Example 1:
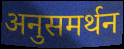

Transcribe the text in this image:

अनुसमर्थन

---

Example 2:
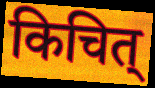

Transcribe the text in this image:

किचित्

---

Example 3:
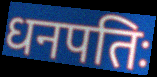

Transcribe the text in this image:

धनपतिः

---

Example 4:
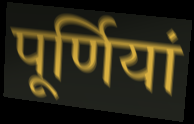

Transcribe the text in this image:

पूर्णियां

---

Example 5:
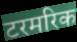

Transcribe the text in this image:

टरमरिक